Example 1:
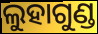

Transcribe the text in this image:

ଲୁହାଗୁଣ୍ଡ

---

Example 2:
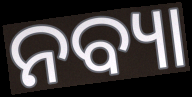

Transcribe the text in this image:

ନବ୍ୟା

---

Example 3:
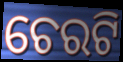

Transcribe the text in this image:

ଚେରଟି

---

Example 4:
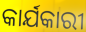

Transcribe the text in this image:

କାର୍ଯକାରୀ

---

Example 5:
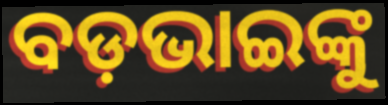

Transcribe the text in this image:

ବଡ଼ଭାଇଙ୍କୁ